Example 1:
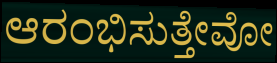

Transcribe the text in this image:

ಆರಂಭಿಸುತ್ತೇವೋ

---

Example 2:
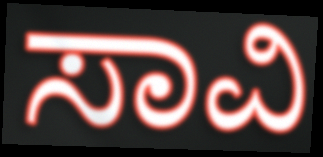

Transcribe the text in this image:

ಸಾವಿ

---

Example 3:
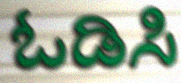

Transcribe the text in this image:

ಓಡಿಸಿ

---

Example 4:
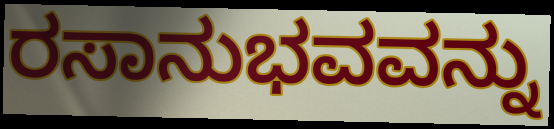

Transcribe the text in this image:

ರಸಾನುಭವವನ್ನು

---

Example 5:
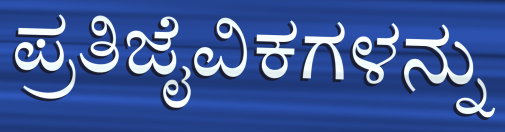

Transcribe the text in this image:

ಪ್ರತಿಜೈವಿಕಗಳನ್ನು